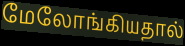
மேலோங்கியதால்